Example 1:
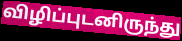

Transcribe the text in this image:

விழிப்புடனிருந்து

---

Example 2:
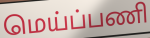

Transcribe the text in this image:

மெய்ப்பணி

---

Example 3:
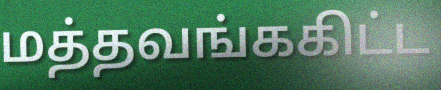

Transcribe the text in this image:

மத்தவங்ககிட்ட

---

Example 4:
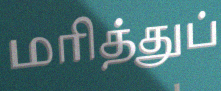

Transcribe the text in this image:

மரித்துப்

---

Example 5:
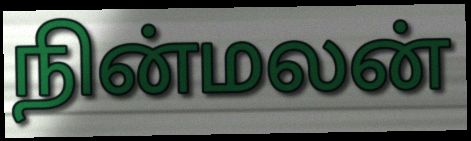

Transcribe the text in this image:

நின்மலன்